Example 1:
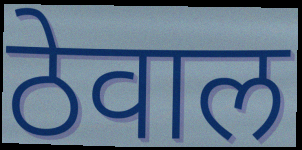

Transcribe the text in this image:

ठेवाल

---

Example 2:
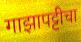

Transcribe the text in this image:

गाझापट्टीचा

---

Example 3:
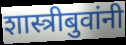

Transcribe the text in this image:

शास्त्रीबुवांनी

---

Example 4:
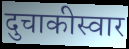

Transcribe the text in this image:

दुचाकीस्वार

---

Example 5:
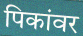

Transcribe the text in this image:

पिकांवर